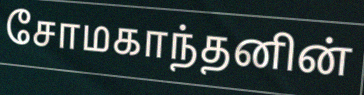
சோமகாந்தனின்